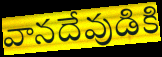
వానదేవుడికి